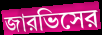
জারভিসের